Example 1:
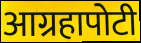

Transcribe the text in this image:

आग्रहापोटी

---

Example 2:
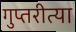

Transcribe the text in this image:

गुप्तरीत्या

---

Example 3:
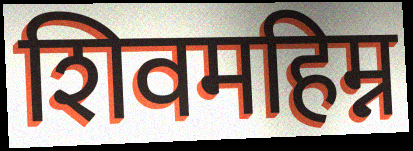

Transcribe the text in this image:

शिवमहिम्न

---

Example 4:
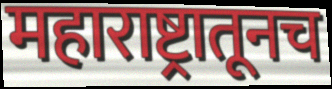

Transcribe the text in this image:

महाराष्ट्रातूनच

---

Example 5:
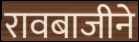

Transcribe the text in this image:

रावबाजीने